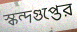
স্কন্দগুপ্তের